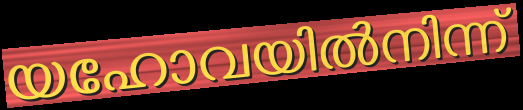
യഹോവയിൽനിന്ന്